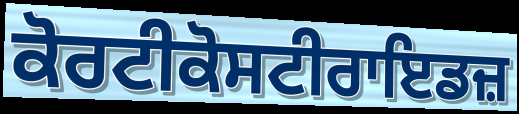
ਕੋਰਟੀਕੋਸਟੀਰਾਇਡਜ਼